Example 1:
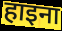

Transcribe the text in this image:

हाइना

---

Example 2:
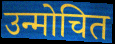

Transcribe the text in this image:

उन्मोचित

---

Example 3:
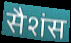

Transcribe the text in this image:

सैशंस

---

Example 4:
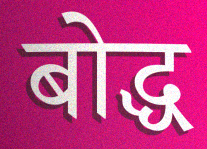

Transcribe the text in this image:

बोद्ध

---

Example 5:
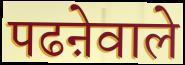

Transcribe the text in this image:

पढऩेवाले